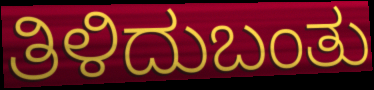
ತಿಳಿದುಬಂತು